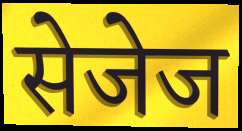
सेजेज